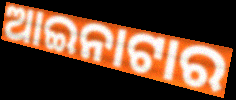
ଆଇନାଟାର